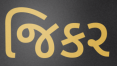
જિકર